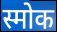
स्मोक